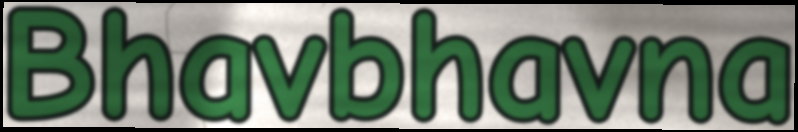
Bhavbhavna